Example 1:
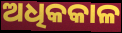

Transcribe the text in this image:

ଅଧିକକାଳ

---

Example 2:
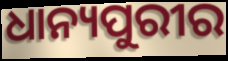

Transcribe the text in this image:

ଧାନ୍ୟପୁରୀର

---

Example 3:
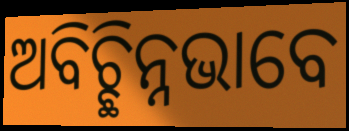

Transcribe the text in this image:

ଅବିଚ୍ଛିନ୍ନଭାବେ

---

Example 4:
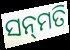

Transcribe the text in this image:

ସନ୍‌ମତି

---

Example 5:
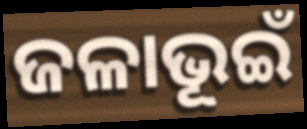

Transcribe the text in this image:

ଜଳାଭୂଇଁ